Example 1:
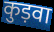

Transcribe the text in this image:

कुड़वा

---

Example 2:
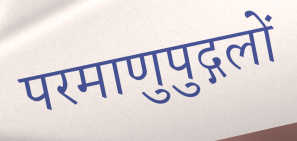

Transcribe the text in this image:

परमाणुपुद्गलों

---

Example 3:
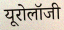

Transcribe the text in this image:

यूरोलॉजी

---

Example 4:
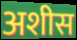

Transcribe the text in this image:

अशीस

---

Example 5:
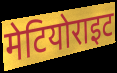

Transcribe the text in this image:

मेटियोराइट